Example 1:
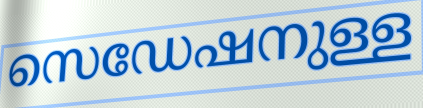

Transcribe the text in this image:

സെഡേഷനുള്ള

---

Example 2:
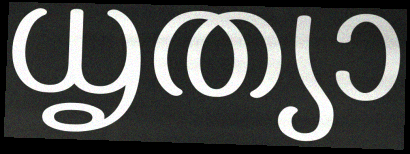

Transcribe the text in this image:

ധൃത്യാ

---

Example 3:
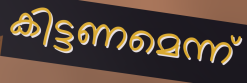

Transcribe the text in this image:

കിട്ടണമെന്ന്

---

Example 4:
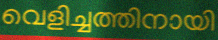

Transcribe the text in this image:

വെളിച്ചത്തിനായി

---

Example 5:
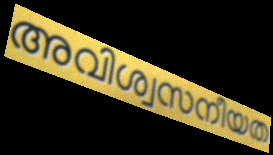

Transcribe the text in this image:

അവിശ്വസനീയത